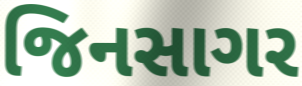
જિનસાગર